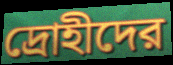
দ্রোহীদের